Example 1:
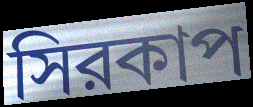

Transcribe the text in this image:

সিরকাপ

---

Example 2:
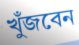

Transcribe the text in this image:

খুঁজবেন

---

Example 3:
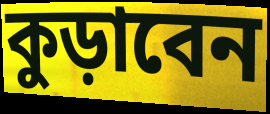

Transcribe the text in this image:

কুড়াবেন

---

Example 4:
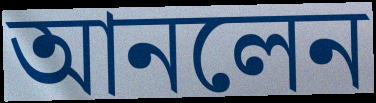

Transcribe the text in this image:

আনলেন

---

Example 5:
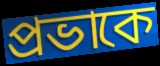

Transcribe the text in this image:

প্রভাকে